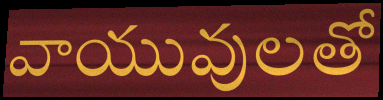
వాయువులతో